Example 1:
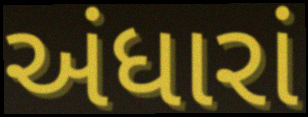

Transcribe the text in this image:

અંધારાં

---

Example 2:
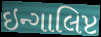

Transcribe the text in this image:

ઇન્ગાલિપ્ટ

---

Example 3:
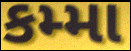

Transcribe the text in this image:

કમ્મા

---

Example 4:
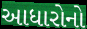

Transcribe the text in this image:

આધારોનો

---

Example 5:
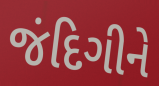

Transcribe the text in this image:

જંદિગીને